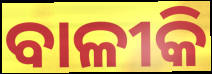
ବାଳୀକି